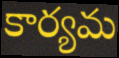
కార్యమ